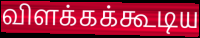
விளக்கக்கூடிய